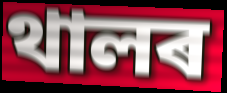
থালৰ